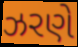
ઝરણે